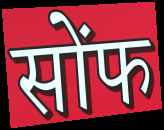
सोंफ